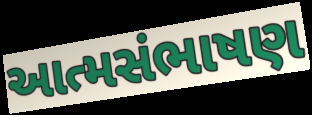
આત્મસંભાષણ